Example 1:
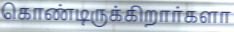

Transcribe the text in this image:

கொண்டிருக்கிறார்களா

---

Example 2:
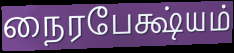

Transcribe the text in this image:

நைரபேக்ஷ்யம்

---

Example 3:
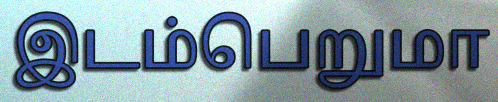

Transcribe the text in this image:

இடம்பெறுமா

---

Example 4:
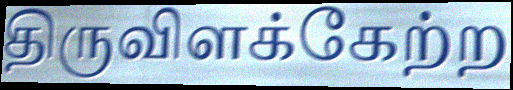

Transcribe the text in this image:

திருவிளக்கேற்ற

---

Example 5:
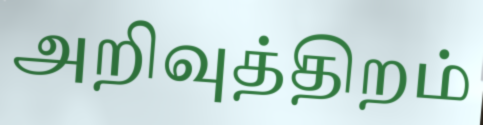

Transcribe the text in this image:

அறிவுத்திறம்